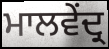
ਮਾਲਵੇਂਦ੍ਰ